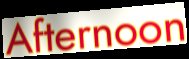
Afternoon